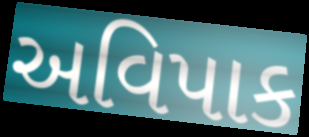
અવિપાક